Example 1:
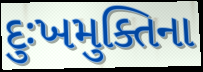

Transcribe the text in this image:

દુઃખમુક્તિના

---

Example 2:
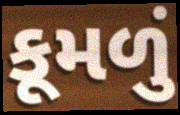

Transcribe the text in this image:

કૂમળું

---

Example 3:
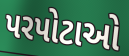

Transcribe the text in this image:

પરપોટાઓ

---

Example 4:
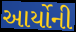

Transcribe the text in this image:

આર્યોની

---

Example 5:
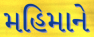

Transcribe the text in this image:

મહિમાને